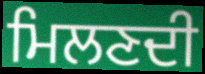
ਮਿਲਣਦੀ